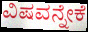
ವಿಷವನ್ನೇಕೆ